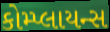
કોમ્પ્લાયન્સ